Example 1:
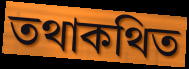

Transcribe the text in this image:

তথাকথিত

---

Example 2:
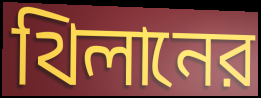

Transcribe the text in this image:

থিলানের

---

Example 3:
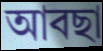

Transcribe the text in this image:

আবছা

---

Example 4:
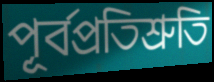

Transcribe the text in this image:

পূর্বপ্রতিশ্রুতি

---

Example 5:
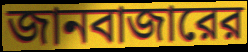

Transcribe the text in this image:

জানবাজারের